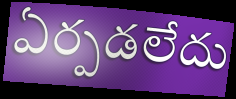
ఏర్పడలేదు